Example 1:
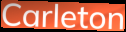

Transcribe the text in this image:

Carleton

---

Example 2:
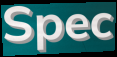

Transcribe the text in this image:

Spec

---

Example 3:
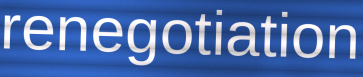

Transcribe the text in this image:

renegotiation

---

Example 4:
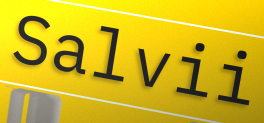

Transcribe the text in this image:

Salvii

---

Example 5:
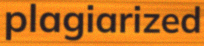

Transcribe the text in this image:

plagiarized